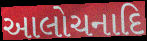
આલોચનાદિ